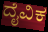
ದೈವಿಕ